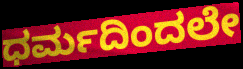
ಧರ್ಮದಿಂದಲೇ